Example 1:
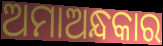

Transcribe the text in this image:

ଅମାଅନ୍ଧକାର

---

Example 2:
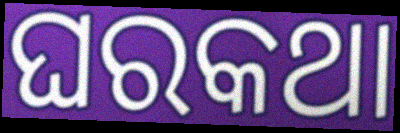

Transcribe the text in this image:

ଘରକଥା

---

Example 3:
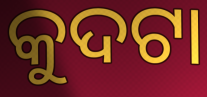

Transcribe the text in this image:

କୁଦଟା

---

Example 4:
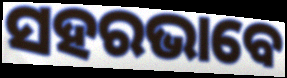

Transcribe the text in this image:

ସହରଭାବେ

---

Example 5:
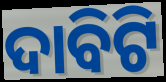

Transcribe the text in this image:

ଦାବିଟି